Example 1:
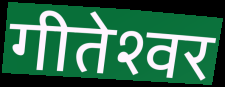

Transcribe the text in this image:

गीतेश्वर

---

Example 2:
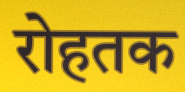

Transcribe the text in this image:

रोहतक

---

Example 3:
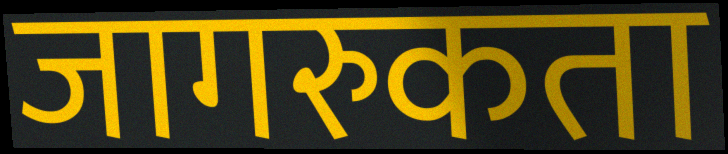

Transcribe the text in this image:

जागरुकता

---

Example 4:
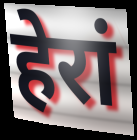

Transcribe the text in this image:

हेरां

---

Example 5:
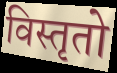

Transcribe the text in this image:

विस्तृतो